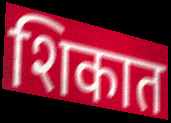
शिकात